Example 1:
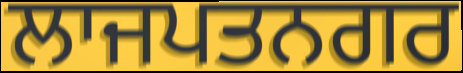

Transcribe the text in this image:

ਲਾਜਪਤਨਗਰ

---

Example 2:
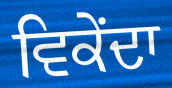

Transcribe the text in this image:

ਵਿਕੇਂਦਾ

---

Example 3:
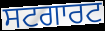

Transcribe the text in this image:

ਸਟਗਾਰਟ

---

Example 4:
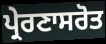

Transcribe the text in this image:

ਪ੍ਰੇਰਣਾਸਰੋਤ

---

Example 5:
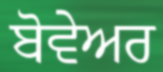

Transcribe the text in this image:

ਬੋਵੇਅਰ